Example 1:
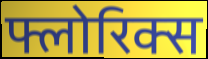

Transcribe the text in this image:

फ्लोरिक्स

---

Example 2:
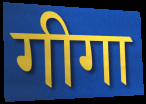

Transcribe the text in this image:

गीगा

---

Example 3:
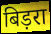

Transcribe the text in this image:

बिड़रा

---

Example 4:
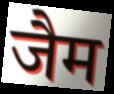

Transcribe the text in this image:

जैम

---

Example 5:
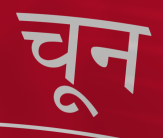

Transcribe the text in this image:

चून